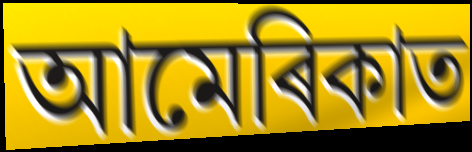
আমেৰিকাত